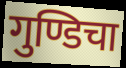
गुण्डिचा